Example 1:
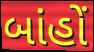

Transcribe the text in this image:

બાંહોં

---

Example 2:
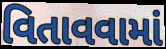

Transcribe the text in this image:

વિતાવવામાં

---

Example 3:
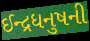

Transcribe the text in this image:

ઈન્દ્રધનુષની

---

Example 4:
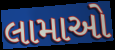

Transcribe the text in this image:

લામાઓ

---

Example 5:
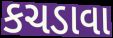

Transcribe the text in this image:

કચડાવા